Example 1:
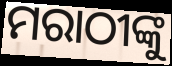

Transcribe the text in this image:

ମରାଠୀଙ୍କୁ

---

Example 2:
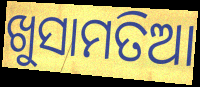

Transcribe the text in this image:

ଖୁସାମତିଆ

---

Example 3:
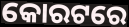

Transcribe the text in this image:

କୋରଟରେ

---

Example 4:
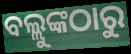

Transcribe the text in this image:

ବଲ୍ଲୁଙ୍କଠାରୁ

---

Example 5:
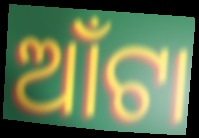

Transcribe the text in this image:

ଆଁଟା